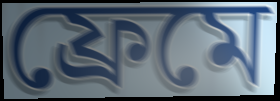
ফ্রেমে